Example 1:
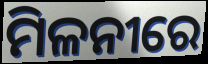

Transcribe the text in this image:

ମିଳନୀରେ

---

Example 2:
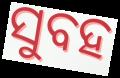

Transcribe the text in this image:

ସୁବହ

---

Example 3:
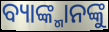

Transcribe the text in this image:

ବ୍ୟାଙ୍କ୍ମାନଙ୍କୁ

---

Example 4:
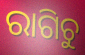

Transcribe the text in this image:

ରାଗିଚୁ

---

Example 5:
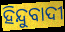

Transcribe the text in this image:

ହିନ୍ଦୁବାଦୀ